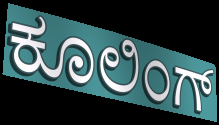
ಕೂಲಿಂಗ್